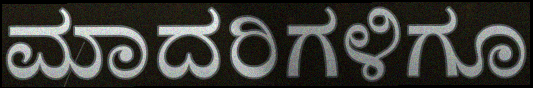
ಮಾದರಿಗಳಿಗೂ